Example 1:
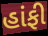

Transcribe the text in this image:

હાંફી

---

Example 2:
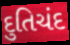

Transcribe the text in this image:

દુતિચંદ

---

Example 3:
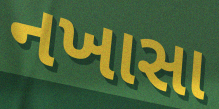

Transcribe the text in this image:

નખાસા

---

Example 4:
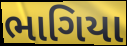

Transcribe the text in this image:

ભાગિયા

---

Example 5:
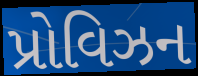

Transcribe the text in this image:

પ્રોવિઝન